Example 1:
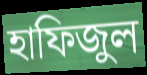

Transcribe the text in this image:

হাফিজুল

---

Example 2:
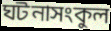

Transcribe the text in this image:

ঘটনাসংকুল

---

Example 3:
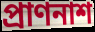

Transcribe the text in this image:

প্রাণনাশ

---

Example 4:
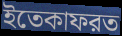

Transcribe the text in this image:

ইতেকাফরত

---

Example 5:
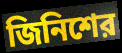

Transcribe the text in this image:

জিনিশের